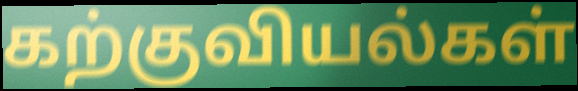
கற்குவியல்கள்